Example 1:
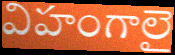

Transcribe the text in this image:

విహంగాలై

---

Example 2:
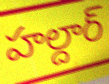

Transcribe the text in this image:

హల్దార్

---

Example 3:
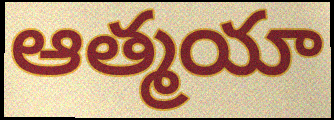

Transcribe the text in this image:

ఆత్మయా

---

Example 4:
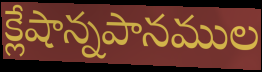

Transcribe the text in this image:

క్లేషాన్నపానముల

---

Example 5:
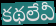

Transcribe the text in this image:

కథలేవీ